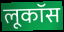
लूकॉस